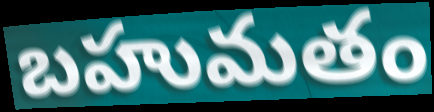
బహుమతం